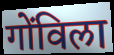
गोंविला